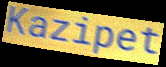
Kazipet